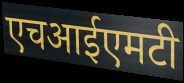
एचआईएमटी